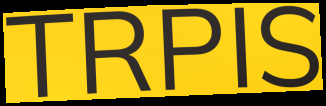
TRPIS